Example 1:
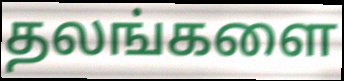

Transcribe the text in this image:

தலங்களை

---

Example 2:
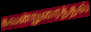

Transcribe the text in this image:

கவன்றுரைத்தல்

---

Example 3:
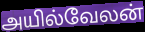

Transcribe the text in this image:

அயில்வேலன்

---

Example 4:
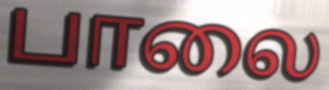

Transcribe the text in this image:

பாலை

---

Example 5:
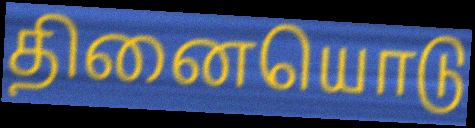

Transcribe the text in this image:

தினையொடு